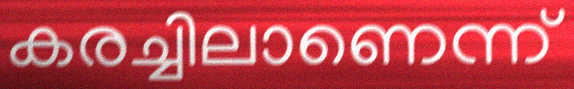
കരച്ചിലാണെന്ന്